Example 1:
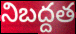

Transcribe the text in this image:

నిబద్దత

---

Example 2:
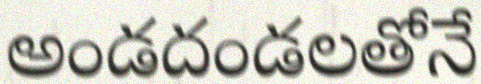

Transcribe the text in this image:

అండదండలతోనే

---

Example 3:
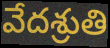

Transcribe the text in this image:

వేదశ్రుతి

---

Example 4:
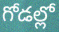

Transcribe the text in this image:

గోడల్లో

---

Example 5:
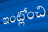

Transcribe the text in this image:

ఇంట్లోంచి